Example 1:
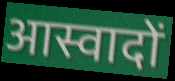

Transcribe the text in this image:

आस्वादों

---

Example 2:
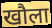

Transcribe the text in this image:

खौला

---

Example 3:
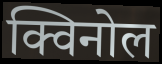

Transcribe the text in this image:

क्विनोल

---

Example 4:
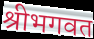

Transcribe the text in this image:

श्रीभगवत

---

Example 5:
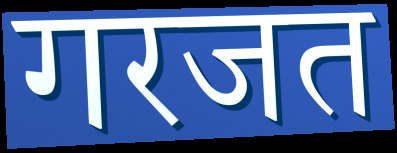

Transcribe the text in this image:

गरजत